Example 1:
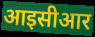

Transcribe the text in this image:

आइसीआर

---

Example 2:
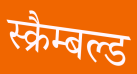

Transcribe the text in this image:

स्क्रैम्बल्ड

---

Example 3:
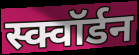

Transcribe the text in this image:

स्क्वॉर्डन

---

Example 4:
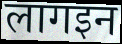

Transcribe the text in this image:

लागइन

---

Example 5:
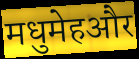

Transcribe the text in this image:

मधुमेहऔर